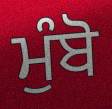
ਮੁੰਬੋ